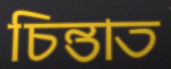
চিন্তাত